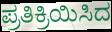
ಪ್ರತಿಕ್ರಿಯಿಸಿದ